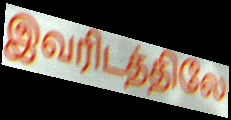
இவரிடத்திலே